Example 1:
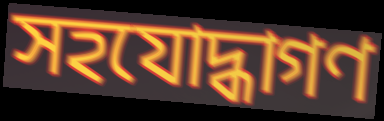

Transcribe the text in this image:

সহযোদ্ধাগণ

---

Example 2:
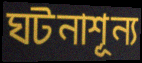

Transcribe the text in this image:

ঘটনাশূন্য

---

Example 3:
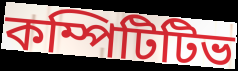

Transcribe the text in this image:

কম্পিটিটিভ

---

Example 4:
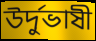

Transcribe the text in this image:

উর্দুভাষী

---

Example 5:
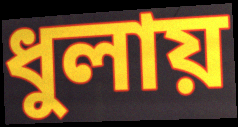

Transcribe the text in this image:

ধুলায়